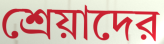
শ্রেয়াদের